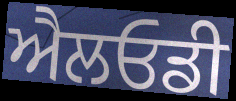
ਐਲਓਡੀ